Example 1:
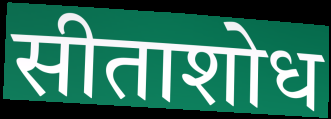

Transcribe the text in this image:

सीताशोध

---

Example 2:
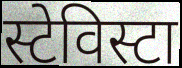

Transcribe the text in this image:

स्टेविस्टा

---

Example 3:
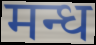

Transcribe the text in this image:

मन्ध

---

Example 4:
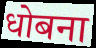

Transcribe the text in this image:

धोबना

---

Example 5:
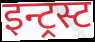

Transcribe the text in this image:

इन्ट्रस्ट